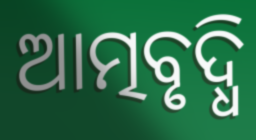
ଆତ୍ମବୃଦ୍ଧି